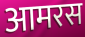
आमरस